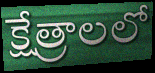
క్షేత్రాలలో